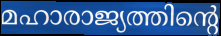
മഹാരാജ്യത്തിന്റെ